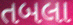
તબલા